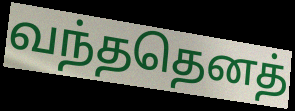
வந்ததெனத்